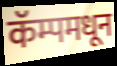
कॅम्पमधून